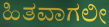
ಹಿತವಾಗಲೀ